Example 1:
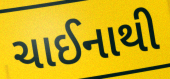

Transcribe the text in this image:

ચાઈનાથી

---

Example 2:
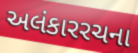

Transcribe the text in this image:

અલંકારરચના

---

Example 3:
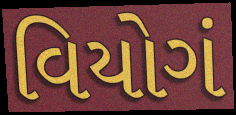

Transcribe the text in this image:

વિયોગં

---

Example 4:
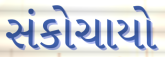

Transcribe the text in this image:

સંકોચાયો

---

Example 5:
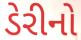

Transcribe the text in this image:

ડેરીનો